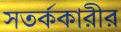
সতর্ককারীর